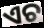
ଏଚ